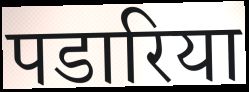
पडारिया